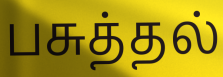
பசுத்தல்